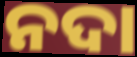
ନଦା